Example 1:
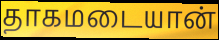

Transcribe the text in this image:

தாகமடையான்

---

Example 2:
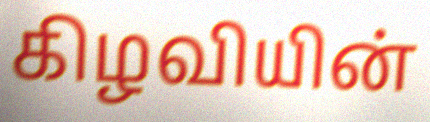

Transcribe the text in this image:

கிழவியின்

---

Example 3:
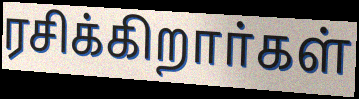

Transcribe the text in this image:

ரசிக்கிறார்கள்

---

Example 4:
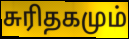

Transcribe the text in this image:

சுரிதகமும்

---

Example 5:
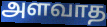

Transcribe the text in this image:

அளவாத